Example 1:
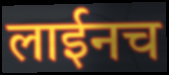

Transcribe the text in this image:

लाईनच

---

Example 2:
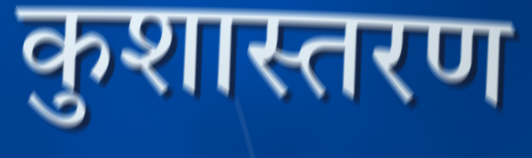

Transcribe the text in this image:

कुशास्तरण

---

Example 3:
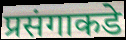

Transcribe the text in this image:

प्रसंगाकडे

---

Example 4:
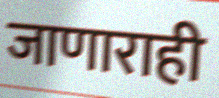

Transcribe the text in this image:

जाणाराही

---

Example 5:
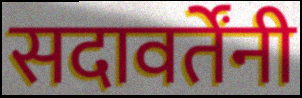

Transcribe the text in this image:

सदावर्तेंनी